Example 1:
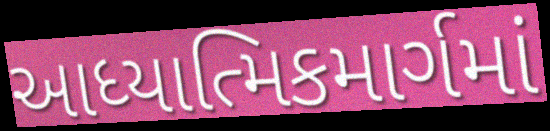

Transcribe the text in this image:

આધ્યાત્મિકમાર્ગમાં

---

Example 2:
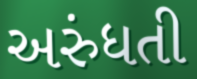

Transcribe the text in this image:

અરુંધતી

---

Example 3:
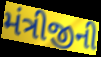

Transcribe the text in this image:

મંત્રીજીની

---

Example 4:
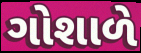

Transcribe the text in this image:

ગોશાળે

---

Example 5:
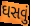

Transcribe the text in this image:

ઘસવું